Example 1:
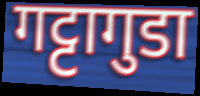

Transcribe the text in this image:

गट्टागुडा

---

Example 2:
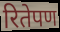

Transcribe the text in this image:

रितेपण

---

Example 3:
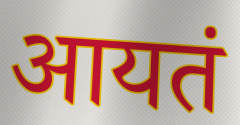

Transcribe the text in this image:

आयतं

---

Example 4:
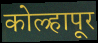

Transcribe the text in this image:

कोल्हापूर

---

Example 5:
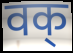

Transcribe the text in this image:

वक्